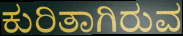
ಕುರಿತಾಗಿರುವ